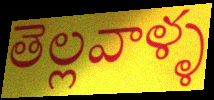
తెల్లవాళ్ళ